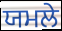
ਯਮਲੇ